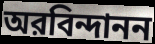
অরবিন্দানন